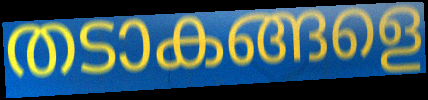
തടാകങ്ങളെ